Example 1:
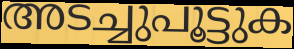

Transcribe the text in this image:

അടച്ചുപൂട്ടുക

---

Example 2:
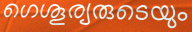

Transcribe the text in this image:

ഗെശൂര്യരുടെയും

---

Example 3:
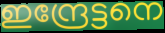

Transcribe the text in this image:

ഇന്ദ്രേട്ടനെ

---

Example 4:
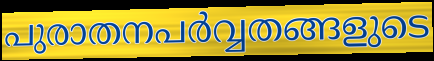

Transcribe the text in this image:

പുരാതനപർവ്വതങ്ങളുടെ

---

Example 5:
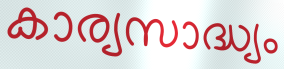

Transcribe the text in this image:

കാര്യസാദ്ധ്യം